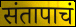
संतापाचं